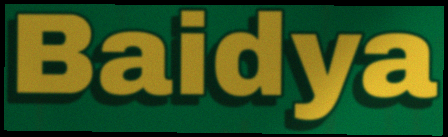
Baidya